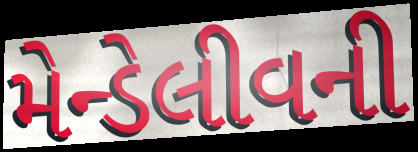
મેન્ડેલીવની